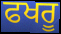
ਫਖਰੂ